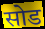
सोड